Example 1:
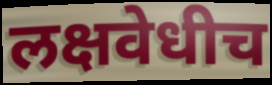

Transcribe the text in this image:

लक्षवेधीच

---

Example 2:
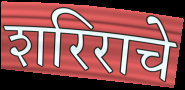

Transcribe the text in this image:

शरिराचे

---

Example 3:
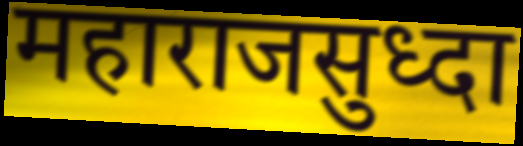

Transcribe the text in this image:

महाराजसुध्दा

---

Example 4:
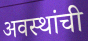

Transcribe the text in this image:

अवस्थांची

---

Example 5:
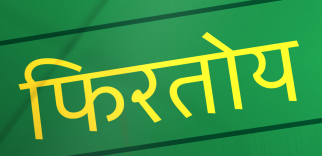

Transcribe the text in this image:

फिरतोय